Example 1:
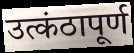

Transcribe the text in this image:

उत्कंठापूर्ण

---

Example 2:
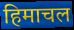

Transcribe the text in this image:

हिमाचल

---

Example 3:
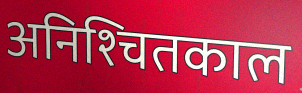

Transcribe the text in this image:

अनिश्चितकाल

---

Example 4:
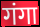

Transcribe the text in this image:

गंगा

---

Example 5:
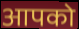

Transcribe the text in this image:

आपको